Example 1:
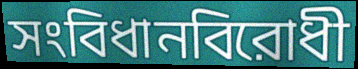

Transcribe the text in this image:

সংবিধানবিরোধী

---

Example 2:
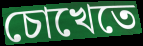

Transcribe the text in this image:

চোখেতে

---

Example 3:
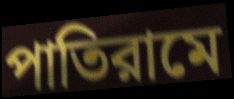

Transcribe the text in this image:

পাতিরামে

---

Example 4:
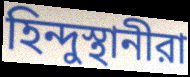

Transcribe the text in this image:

হিন্দুস্থানীরা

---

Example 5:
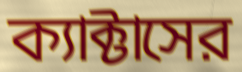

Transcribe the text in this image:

ক্যাক্টাসের